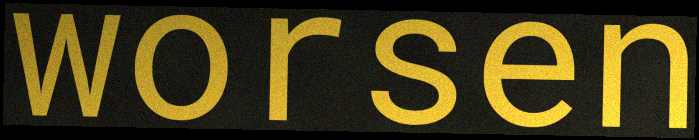
worsen